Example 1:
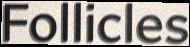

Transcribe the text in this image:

Follicles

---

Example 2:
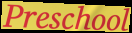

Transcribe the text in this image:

Preschool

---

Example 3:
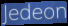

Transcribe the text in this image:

Jedeon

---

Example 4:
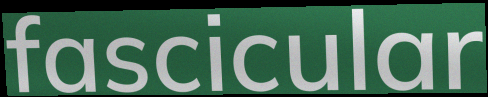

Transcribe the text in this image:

fascicular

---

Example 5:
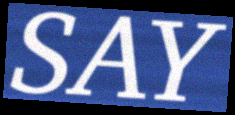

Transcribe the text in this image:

SAY